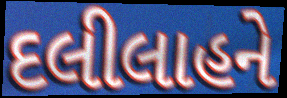
દલીલાહને